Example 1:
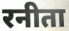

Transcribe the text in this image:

रनीता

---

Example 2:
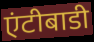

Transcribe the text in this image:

एंटीबाडी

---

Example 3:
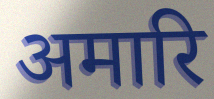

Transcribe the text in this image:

अमारि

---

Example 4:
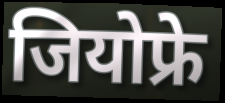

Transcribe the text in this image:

जियोफ्रे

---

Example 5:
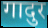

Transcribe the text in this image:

गादुर